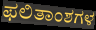
ಫಲಿತಾಂಶಗಳ